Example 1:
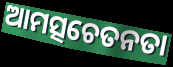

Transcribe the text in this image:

ଆମତ୍ସଚେତନତା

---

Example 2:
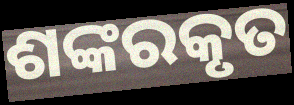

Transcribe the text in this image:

ଶଙ୍କରକୃତ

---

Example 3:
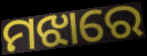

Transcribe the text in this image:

ମଝାରେ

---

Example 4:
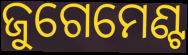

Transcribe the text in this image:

ଜୁଗେମେଣ୍ଟ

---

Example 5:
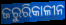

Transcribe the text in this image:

ଜରୁରିକାଳୀନ